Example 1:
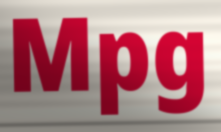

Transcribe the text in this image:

Mpg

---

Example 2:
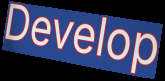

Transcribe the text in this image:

Develop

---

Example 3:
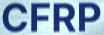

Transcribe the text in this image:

CFRP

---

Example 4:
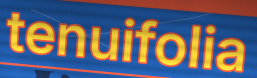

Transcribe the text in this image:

tenuifolia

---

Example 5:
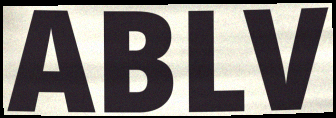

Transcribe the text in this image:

ABLV